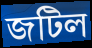
জটিল